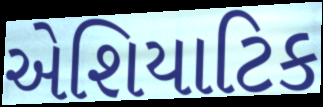
એશિયાટિક